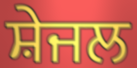
ਸ਼ੇਜਲ